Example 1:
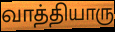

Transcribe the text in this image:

வாத்தியாரு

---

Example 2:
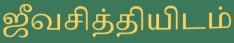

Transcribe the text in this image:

ஜீவசித்தியிடம்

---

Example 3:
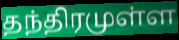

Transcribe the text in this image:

தந்திரமுள்ள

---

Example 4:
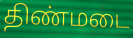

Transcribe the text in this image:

திண்மடை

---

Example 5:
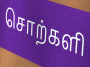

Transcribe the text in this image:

சொற்களி